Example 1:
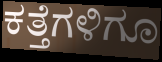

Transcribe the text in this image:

ಕತ್ತೆಗಳಿಗೂ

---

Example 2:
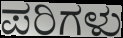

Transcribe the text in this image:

ಪರಿಗಳು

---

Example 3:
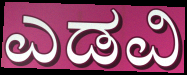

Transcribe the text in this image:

ಎಡವಿ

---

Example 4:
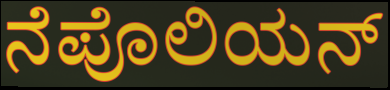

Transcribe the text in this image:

ನೆಪೊಲಿಯನ್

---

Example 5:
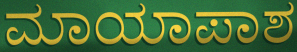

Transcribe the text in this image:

ಮಾಯಾಪಾಶ